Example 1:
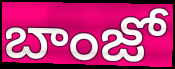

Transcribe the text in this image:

బాంజో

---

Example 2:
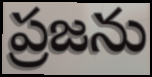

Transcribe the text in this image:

ప్రజను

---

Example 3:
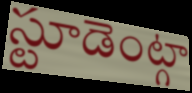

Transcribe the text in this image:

స్టూడెంట్గా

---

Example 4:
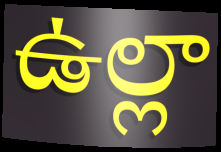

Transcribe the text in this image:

ఉల్లా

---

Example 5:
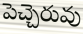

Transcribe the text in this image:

పెచ్చెరువు